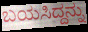
ಬಯಸಿದ್ದನ್ನು